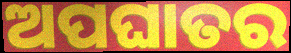
ଅପଘାତର